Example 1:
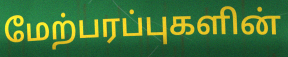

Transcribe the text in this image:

மேற்பரப்புகளின்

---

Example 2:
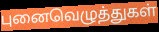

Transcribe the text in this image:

புனைவெழுத்துகள்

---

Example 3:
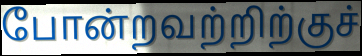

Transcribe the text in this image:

போன்றவற்றிற்குச்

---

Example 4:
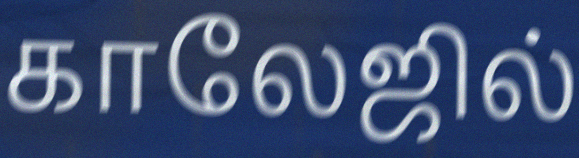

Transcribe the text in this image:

காலேஜில்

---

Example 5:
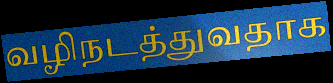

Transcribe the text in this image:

வழிநடத்துவதாக